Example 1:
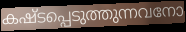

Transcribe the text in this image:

കഷ്ടപ്പെടുത്തുന്നവനോ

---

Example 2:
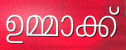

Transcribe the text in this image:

ഉമ്മാക്ക്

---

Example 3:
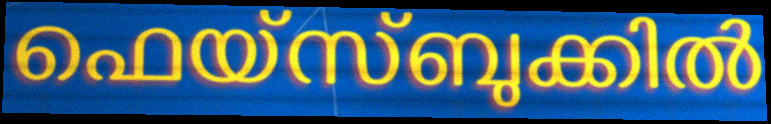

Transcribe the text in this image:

ഫെയ്സ്ബുക്കിൽ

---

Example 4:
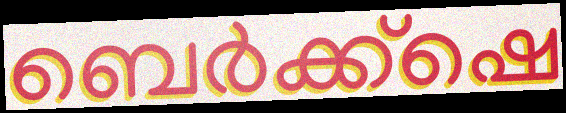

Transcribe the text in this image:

ബെർക്ക്ഷെ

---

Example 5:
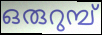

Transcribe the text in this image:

ഒരുറുമ്പ്